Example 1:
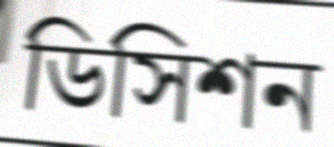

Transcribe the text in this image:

ডিসিশন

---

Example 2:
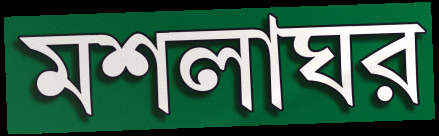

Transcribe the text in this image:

মশলাঘর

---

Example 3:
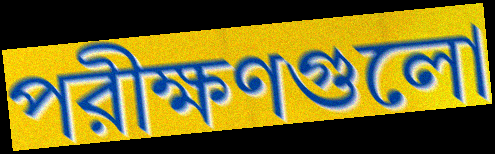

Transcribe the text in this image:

পরীক্ষণগুলো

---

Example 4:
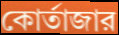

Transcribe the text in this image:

কোর্তাজার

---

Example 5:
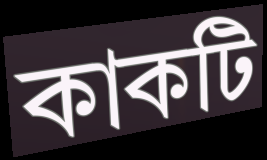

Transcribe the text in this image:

কাকটি